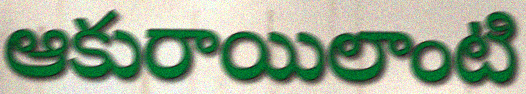
ఆకురాయిలాంటి